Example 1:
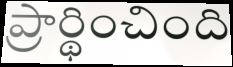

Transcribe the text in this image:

ప్రార్థించింది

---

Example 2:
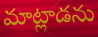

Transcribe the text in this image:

మాట్లాడను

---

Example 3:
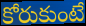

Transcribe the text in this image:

కోరుకుంటే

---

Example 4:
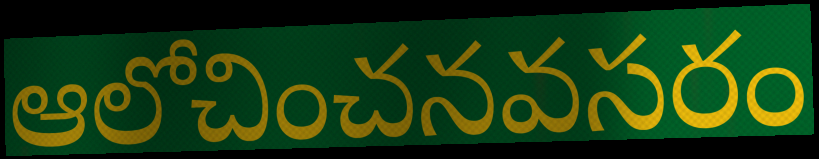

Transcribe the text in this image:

ఆలోచించనవసరం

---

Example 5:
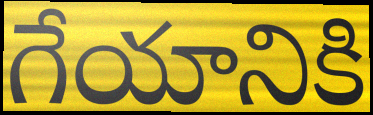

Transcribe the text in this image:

గేయానికి